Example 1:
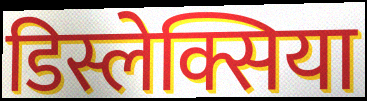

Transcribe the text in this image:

डिस्लेक्सिया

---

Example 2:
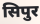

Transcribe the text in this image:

सिपुर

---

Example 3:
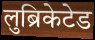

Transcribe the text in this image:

लुब्रिकेटेड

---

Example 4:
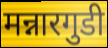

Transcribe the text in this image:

मन्नारगुडी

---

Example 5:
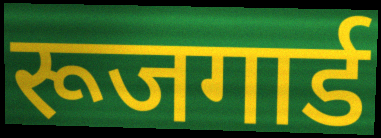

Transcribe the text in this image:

रूजगार्ड